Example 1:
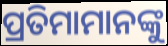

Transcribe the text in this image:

ପ୍ରତିମାମାନଙ୍କୁ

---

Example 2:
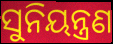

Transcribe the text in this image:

ସୁନିୟନ୍ତ୍ରଣ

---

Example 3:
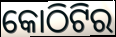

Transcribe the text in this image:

କୋଠିଟିର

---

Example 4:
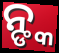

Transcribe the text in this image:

ନ୍ଙ୍କ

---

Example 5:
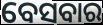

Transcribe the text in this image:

ବେସବାର